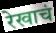
रेखाचं